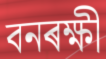
বনৰক্ষী